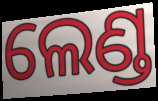
ଲେଣ୍ଡ